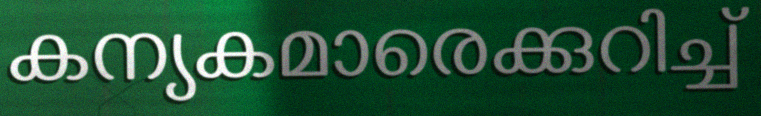
കന്യകമാരെക്കുറിച്ച്